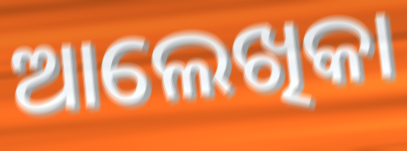
ଆଲେଖିକା